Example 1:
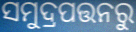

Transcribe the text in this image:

ସମୁଦ୍ରପତ୍ତନରୁ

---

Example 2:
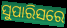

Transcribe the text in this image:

ସୁପାରିସରେ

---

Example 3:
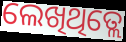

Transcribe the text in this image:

ଲେଖିଥିତ୍ଲେ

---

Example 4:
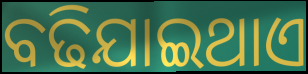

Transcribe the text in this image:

ବଢିଯାଇଥାଏ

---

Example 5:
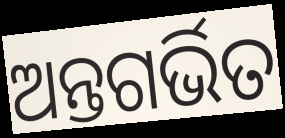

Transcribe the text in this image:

ଅନ୍ତଗର୍ଭିତ